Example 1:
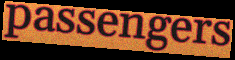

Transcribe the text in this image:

passengers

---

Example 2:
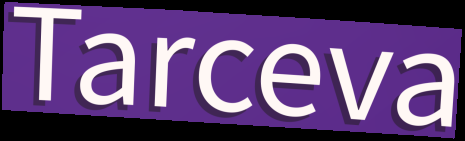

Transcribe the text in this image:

Tarceva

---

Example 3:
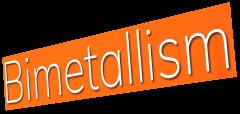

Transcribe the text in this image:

Bimetallism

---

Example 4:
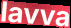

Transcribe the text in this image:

lavva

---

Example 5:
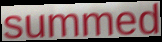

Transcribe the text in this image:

summed